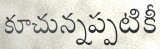
కూచున్నప్పటికీ